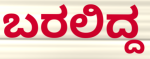
ಬರಲಿದ್ದ